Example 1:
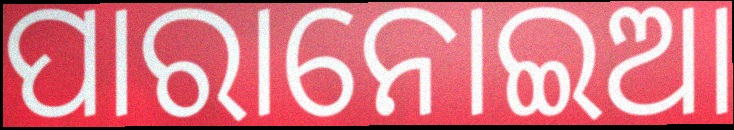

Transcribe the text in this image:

ପାରାନୋଇଆ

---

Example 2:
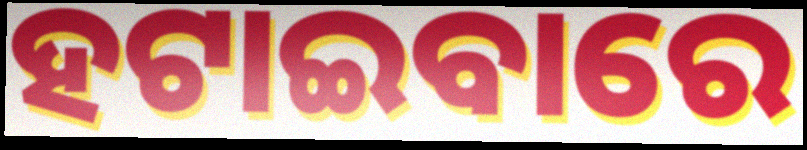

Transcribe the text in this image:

ହଟାଇବାରେ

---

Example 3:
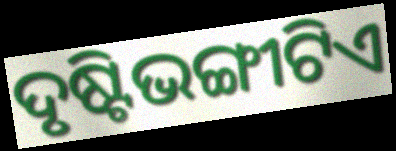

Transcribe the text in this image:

ଦୃଷ୍ଟିଭଙ୍ଗୀଟିଏ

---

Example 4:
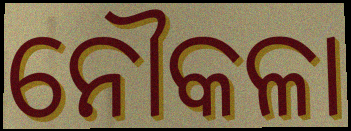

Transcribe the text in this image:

ନୌକଳା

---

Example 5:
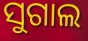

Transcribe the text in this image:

ସୁଗାଲ